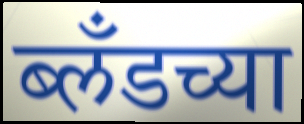
ब्लँडच्या